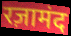
रज़ामंद